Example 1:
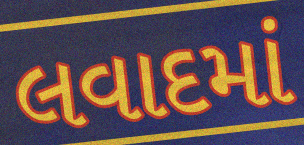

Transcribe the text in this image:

લવાદમાં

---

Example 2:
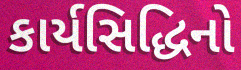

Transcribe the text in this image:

કાર્યસિદ્ધિનો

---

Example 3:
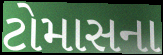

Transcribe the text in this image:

ટોમાસના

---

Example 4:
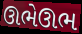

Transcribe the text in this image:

ઊભેઊભ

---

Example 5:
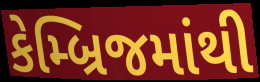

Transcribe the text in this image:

કેમ્બ્રિજમાંથી